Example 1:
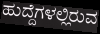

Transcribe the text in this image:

ಹುದ್ದೆಗಳಲ್ಲಿರುವ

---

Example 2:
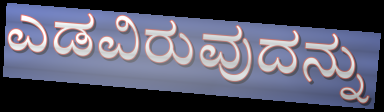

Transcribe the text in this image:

ಎಡವಿರುವುದನ್ನು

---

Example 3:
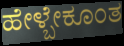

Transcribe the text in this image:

ಹೇಳ್ಬೇಕೂಂತ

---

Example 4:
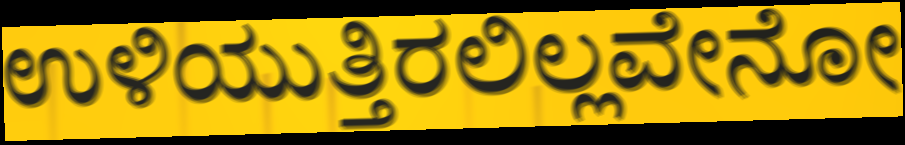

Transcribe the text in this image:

ಉಳಿಯುತ್ತಿರಲಿಲ್ಲವೇನೋ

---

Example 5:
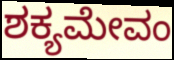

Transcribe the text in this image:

ಶಕ್ಯಮೇವಂ